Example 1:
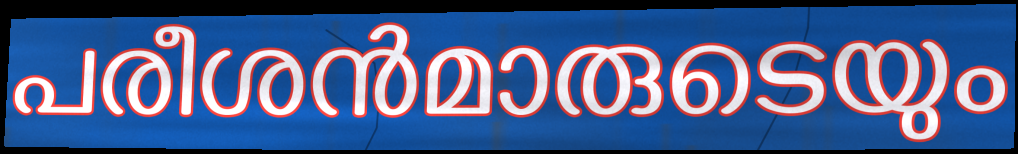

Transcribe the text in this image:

പരീശൻമാരുടെയും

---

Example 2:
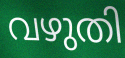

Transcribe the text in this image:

വഴുതി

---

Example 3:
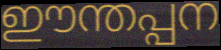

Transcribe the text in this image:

ഈന്തപ്പന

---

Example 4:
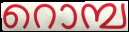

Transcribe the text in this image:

റൊമ്പ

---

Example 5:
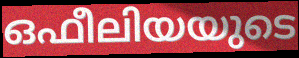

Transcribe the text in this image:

ഒഫീലിയയുടെ